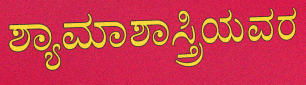
ಶ್ಯಾಮಾಶಾಸ್ತ್ರಿಯವರ